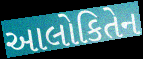
આલોકિતેન